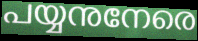
പയ്യനുനേരെ